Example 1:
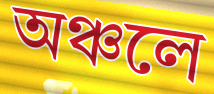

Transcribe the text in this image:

অঞ্চলে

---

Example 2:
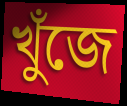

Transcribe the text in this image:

খুঁজে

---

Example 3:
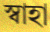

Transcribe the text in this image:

স্বাহা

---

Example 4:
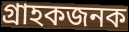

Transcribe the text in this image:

গ্ৰাহকজনক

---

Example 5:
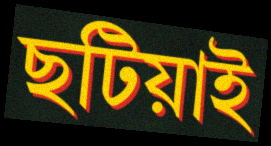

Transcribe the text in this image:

ছটিয়াই